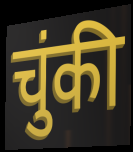
चुंकी